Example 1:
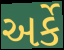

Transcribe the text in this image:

અર્કે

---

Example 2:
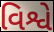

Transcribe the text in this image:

વિશ્વે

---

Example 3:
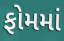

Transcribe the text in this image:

ફોમમાં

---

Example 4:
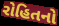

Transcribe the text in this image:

રોહિતનો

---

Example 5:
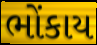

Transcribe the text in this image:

ભોંકાય